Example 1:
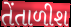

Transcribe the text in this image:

તેંતાળીશ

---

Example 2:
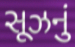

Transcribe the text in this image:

સૂઝનું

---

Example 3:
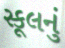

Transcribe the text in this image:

સ્કૂલનું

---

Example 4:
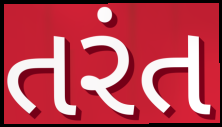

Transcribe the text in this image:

તરંત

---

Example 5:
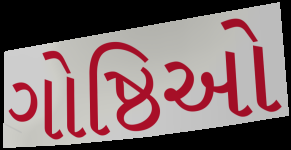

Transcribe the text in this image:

ગોષ્ઠિઓ